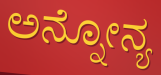
ಅನ್ನೋನ್ಯ